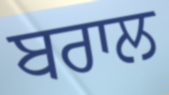
ਬਰਾਲ